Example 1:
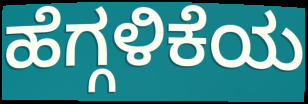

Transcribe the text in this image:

ಹೆಗ್ಗಳಿಕೆಯ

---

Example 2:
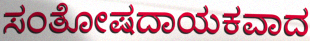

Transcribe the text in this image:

ಸಂತೋಷದಾಯಕವಾದ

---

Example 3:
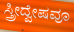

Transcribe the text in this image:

ಸ್ತ್ರೀದ್ವೇಷವೂ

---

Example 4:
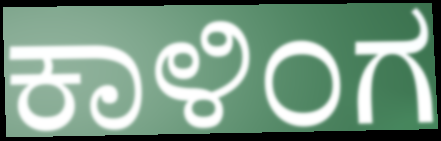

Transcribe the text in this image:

ಕಾಳಿಂಗ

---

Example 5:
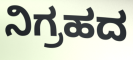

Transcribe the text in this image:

ನಿಗ್ರಹದ